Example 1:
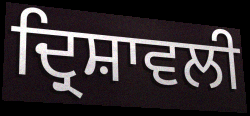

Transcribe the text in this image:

ਦ੍ਰਿਸ਼ਾਵਲੀ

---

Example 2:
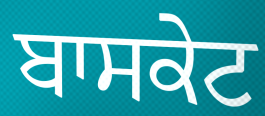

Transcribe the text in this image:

ਬਾਸਕੇਟ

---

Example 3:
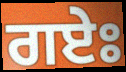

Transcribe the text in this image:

ਗਏਃ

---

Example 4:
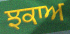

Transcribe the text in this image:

ਝਕਾਅ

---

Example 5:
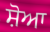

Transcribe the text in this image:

ਸ਼ੋਆ